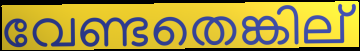
വേണ്ടതെങ്കില്